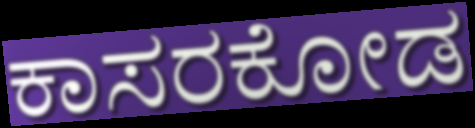
ಕಾಸರಕೋಡ